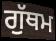
ਗੁੱਥਮ